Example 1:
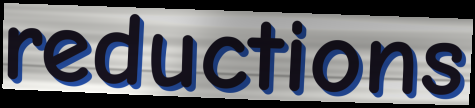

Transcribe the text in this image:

reductions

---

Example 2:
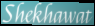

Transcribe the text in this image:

Shekhawat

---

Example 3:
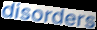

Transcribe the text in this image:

disorders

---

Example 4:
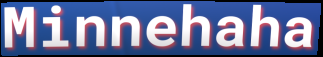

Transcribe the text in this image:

Minnehaha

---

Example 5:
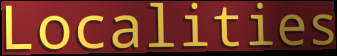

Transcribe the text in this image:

Localities